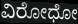
ವಿರೋಧೋ